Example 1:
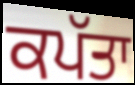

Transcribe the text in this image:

ਕਪੱਤਾ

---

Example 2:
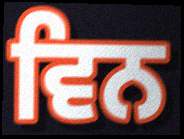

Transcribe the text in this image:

ਵਿਨ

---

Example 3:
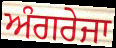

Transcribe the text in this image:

ਅੰਗਰੇਜਾ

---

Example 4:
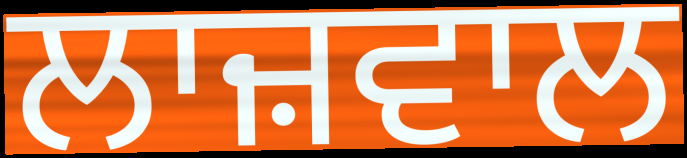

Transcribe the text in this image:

ਲਾਜ਼ਵਾਲ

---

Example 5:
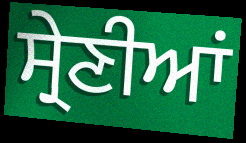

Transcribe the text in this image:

ਸ੍ਰੇਣੀਆਂ